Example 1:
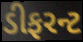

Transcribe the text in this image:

ડીફરન્ટ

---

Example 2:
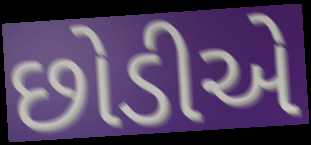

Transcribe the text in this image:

છોડીએ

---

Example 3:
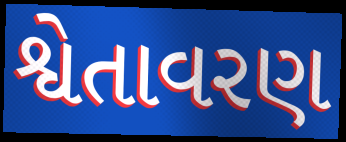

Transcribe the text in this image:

શ્વેતાવરણ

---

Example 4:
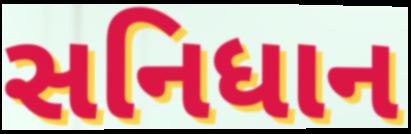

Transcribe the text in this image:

સનિધાન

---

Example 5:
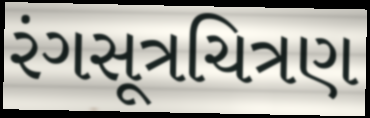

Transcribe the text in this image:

રંગસૂત્રચિત્રણ